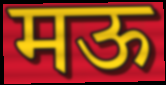
मऊ